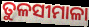
ତୁଳସୀମାଳା